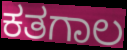
ಕತಗಾಲ